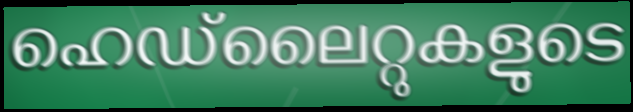
ഹെഡ്‌ലൈറ്റുകളുടെ